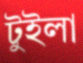
টুইলা